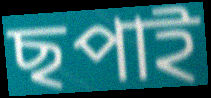
ছপাই